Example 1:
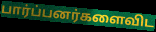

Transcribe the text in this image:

பார்ப்பனர்களைவிட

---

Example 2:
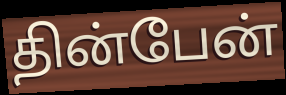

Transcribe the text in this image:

தின்பேன்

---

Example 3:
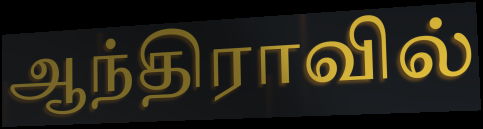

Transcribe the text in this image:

ஆந்திராவில்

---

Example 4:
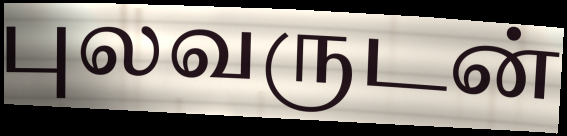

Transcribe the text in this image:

புலவருடன்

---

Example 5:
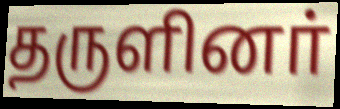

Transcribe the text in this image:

தருளினர்